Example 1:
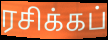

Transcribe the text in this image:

ரசிக்கப்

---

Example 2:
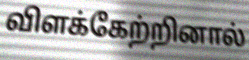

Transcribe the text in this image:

விளக்கேற்றினால்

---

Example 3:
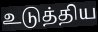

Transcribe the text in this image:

உடுத்திய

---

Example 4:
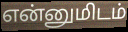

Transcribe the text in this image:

என்னுமிடம்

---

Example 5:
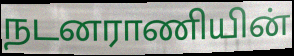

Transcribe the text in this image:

நடனராணியின்